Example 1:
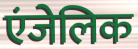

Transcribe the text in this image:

एंजेलिक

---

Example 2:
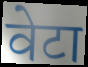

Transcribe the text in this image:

वेटा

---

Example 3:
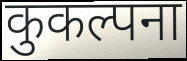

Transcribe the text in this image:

कुकल्पना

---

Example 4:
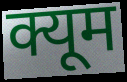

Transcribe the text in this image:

क्यूम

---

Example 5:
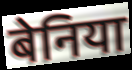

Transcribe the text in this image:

बेनिया